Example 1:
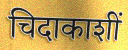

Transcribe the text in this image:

चिदाकाशीं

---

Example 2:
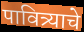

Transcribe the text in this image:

पावित्र्याचे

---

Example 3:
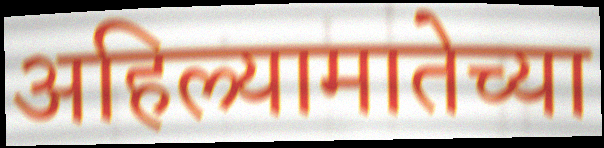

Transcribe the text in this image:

अहिल्यामातेच्या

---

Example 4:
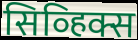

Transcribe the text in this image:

सिव्हिक्स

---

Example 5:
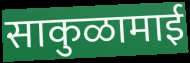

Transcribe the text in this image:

साकुळामाई